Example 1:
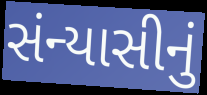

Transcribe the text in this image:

સંન્યાસીનું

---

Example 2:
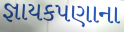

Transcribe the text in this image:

જ્ઞાયકપણાના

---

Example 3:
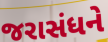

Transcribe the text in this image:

જરાસંધને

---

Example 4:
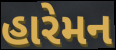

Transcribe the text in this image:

હારેમન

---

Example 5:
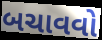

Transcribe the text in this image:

બચાવવો